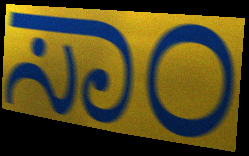
ಸಾಂ